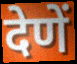
देणें